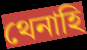
থেনাহি